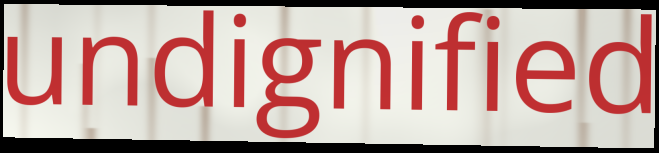
undignified